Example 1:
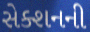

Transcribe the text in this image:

સેક્શનની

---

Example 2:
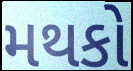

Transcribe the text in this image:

મથકો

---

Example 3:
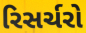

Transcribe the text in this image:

રિસર્ચરો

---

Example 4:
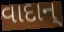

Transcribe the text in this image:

વાદાન્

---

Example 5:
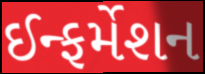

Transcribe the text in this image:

ઈન્ફર્મેશન